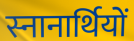
स्नानार्थियों